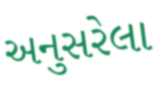
અનુસરેલા